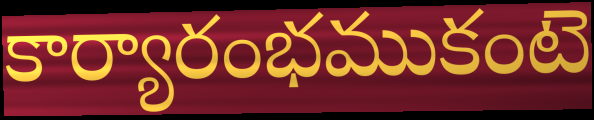
కార్యారంభముకంటె